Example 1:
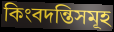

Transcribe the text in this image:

কিংবদন্তিসমূহ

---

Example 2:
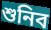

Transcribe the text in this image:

শুনিব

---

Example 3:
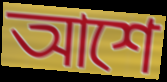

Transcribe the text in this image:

আশে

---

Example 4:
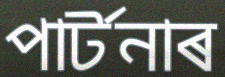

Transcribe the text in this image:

পাৰ্টনাৰ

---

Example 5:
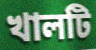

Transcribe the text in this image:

খালটি